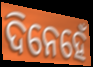
ଦିନେହେଁ